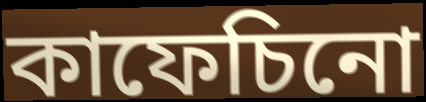
কাফেচিনো